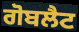
ਗੋਬਲੈਟ